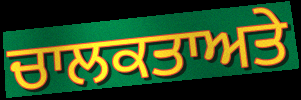
ਚਾਲਕਤਾਅਤੇ